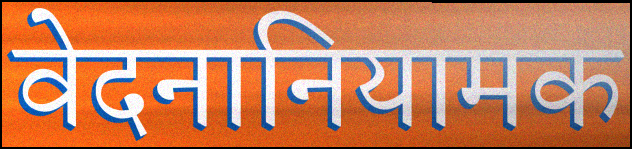
वेदनानियामक